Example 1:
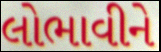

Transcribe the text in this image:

લોભાવીને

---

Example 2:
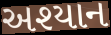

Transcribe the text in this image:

અશ્યાન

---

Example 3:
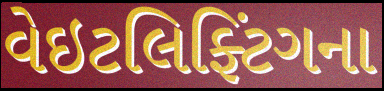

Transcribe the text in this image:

વેઇટલિફ્ટિંગના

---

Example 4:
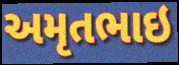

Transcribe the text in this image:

અમૃતભાઇ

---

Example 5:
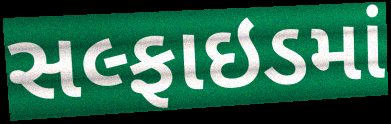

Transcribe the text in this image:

સલ્ફાઇડમાં